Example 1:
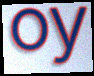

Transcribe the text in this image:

oy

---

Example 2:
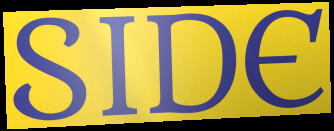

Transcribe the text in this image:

SIDE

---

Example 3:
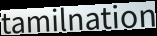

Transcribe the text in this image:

tamilnation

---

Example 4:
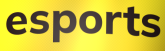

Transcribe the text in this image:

esports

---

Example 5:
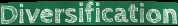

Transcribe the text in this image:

Diversification